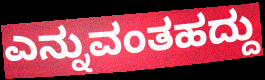
ಎನ್ನುವಂತಹದ್ದು